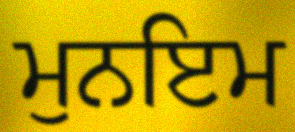
ਮੁਨਇਮ